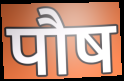
पौष